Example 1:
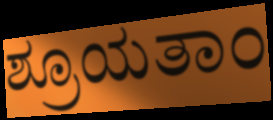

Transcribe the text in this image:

ಶ್ರೂಯತಾಂ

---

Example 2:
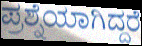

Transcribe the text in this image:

ಪ್ರಶ್ನೆಯಾಗಿದ್ದರೆ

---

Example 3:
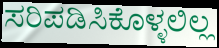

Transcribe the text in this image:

ಸರಿಪಡಿಸಿಕೊಳ್ಳಲಿಲ್ಲ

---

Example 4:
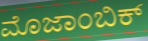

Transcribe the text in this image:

ಮೊಜಾಂಬಿಕ್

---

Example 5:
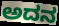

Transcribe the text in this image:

ಅದನ